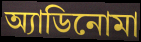
অ্যাডিনোমা